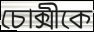
চোক্সীকে